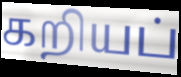
கறியப்